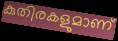
കുതിരകളുമാണ്